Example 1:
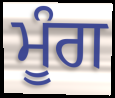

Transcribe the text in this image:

ਮੂੰਗ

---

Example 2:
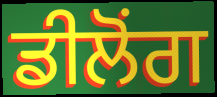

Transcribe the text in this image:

ਡੀਲੋਂਗ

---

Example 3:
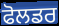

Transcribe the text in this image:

ਫੋਲਡਰ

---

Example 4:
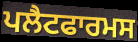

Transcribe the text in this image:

ਪਲੈਟਫਾਰਮਸ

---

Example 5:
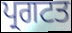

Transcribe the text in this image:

ਪ੍ਰਗਟਤ